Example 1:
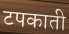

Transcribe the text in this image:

टपकाती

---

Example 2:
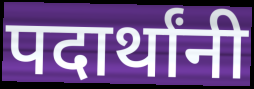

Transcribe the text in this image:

पदार्थांनी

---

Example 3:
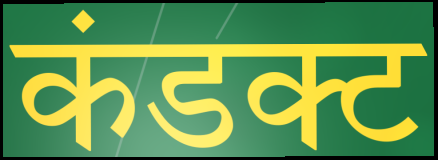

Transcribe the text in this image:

कंडक्ट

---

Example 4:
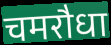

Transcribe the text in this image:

चमरौधा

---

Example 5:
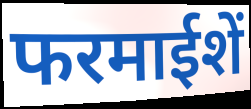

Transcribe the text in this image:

फरमाईशें